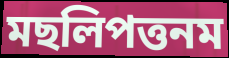
মছলিপত্তনম